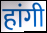
हांगी